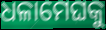
ଧଳାମେଘକୁ